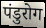
पंडुरोग